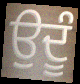
ਉਦੂੰ